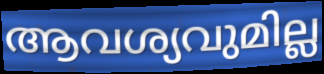
ആവശ്യവുമില്ല